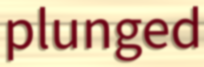
plunged